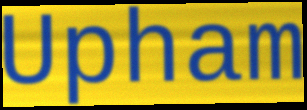
Upham